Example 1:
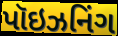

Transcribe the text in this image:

પૉઇઝનિંગ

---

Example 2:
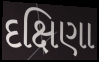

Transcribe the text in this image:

દક્ષિણા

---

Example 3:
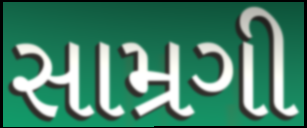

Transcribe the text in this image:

સામ્રગી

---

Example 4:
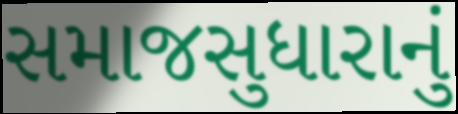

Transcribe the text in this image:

સમાજસુધારાનું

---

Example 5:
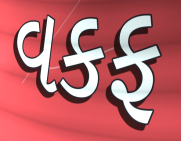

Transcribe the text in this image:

વકફ